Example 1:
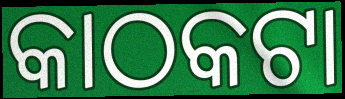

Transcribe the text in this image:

କାଠକଟା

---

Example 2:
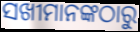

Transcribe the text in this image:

ସଖୀମାନଙ୍କଠାରୁ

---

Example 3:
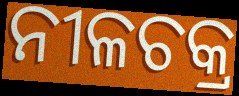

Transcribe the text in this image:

ନୀଳଚକ୍ର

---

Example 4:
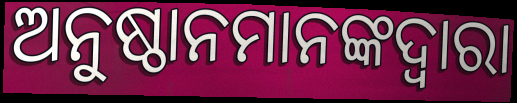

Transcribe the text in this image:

ଅନୁଷ୍ଠାନମାନଙ୍କଦ୍ଵାରା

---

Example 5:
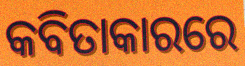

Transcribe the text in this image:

କବିତାକାରରେ